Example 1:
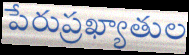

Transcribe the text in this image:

పేరుప్రఖ్యాతుల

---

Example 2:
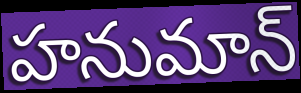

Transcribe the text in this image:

హనుమాన్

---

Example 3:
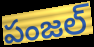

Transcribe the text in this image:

పంజల్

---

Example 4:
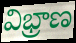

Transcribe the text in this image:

విభ్రాణ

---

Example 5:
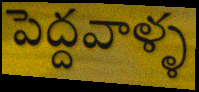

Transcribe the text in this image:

పెద్దవాళ్ళ